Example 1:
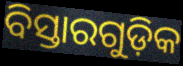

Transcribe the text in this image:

ବିସ୍ତାରଗୁଡ଼ିକ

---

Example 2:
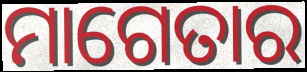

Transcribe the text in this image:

ମାଗେତାର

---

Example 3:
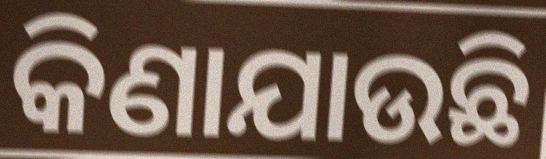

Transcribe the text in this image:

କିଣାଯାଉଛି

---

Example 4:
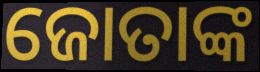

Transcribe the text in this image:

ଜୋତାଙ୍କ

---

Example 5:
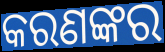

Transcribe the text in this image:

କରଣଙ୍କର